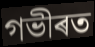
গভীৰত